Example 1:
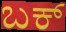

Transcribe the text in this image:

ಬಕ್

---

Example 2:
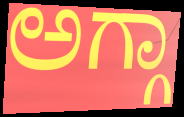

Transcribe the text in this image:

ಅಗ್ಗಾ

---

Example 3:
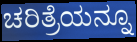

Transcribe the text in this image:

ಚರಿತ್ರೆಯನ್ನೂ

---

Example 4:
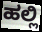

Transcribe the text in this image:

ಹಲ್ಲಿ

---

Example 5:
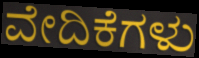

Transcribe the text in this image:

ವೇದಿಕೆಗಳು